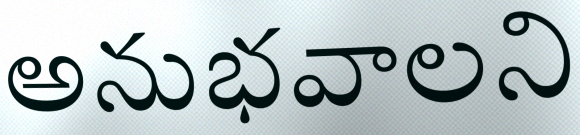
అనుభవాలని